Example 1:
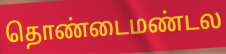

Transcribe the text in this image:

தொண்டைமண்டல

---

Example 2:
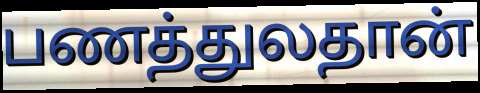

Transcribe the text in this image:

பணத்துலதான்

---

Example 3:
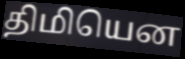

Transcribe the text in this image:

திமியென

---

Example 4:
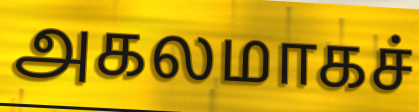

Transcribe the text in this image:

அகலமாகச்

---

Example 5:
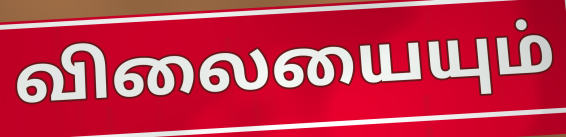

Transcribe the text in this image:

விலையையும்